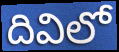
దివిలో